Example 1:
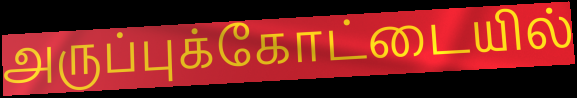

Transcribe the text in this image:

அருப்புக்கோட்டையில்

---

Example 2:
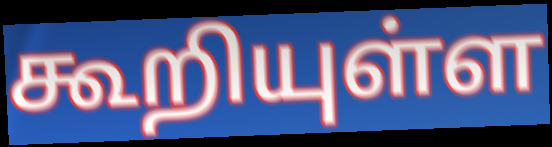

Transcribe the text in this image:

கூறியுள்ள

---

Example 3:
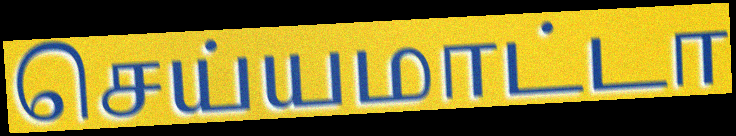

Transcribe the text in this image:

செய்யமாட்டா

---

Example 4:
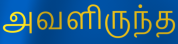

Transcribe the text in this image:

அவளிருந்த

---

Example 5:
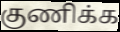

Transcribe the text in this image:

குணிக்க